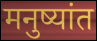
मनुष्यांत